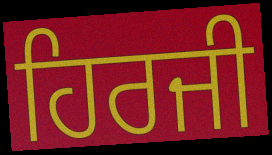
ਹਿਰਜੀ